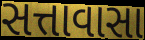
સત્તાવાસા